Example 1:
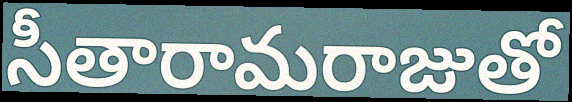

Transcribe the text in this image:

సీతారామరాజుతో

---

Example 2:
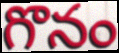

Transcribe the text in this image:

గొనం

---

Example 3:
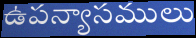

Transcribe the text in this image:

ఉపన్యాసములు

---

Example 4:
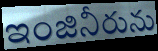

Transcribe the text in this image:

ఇంజినీరును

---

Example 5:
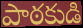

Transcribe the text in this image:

పాఠకుడి